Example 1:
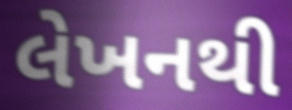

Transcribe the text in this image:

લેખનથી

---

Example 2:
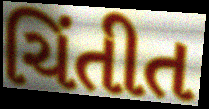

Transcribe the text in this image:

ચિંતીત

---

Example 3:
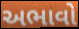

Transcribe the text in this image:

અભાવો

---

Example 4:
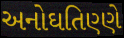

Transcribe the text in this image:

અનોઘતિણ્ણે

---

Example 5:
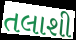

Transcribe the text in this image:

તલાશી